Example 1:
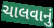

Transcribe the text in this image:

ચાલવાનું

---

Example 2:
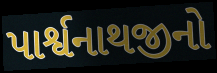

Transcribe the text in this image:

પાર્શ્વનાથજીનો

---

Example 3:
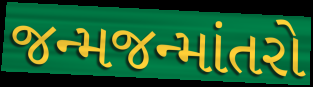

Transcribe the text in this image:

જન્મજન્માંતરો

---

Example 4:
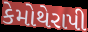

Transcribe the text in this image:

કેમોથેરાપી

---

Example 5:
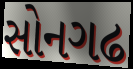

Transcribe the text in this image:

સોનગઢ